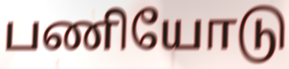
பணியோடு